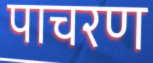
पाचरण